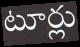
టూర్లు